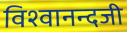
विश्वानन्दजी